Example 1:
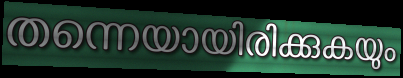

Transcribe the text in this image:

തന്നെയായിരിക്കുകയും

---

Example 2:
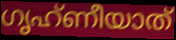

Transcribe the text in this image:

ഗൃഹ്ണീയാത്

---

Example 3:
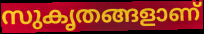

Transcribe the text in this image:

സുകൃതങ്ങളാണ്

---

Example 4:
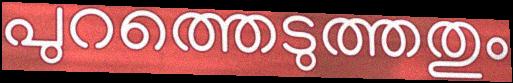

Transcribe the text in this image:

പുറത്തെടുത്തതും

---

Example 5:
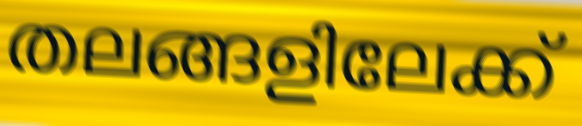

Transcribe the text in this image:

തലങ്ങളിലേക്ക്